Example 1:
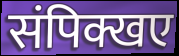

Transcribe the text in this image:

संपिक्खए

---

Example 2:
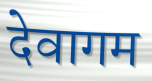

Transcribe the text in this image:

देवागम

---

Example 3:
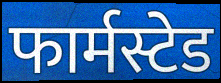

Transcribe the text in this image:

फार्मस्टेड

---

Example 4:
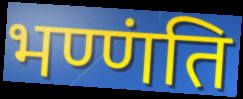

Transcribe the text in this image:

भण्णंति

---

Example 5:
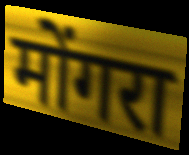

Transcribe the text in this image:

मोंगरा